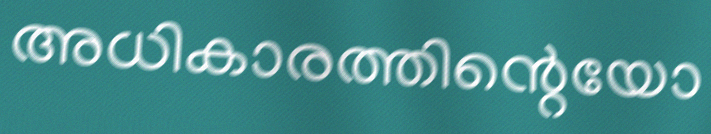
അധികാരത്തിന്റെയോ